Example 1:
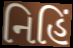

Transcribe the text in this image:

નિહિં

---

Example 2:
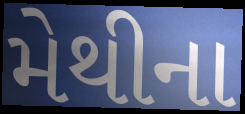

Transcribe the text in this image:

મેથીના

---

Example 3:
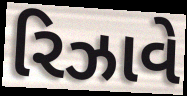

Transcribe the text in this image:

રિઝાવે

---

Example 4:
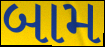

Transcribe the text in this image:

બામ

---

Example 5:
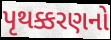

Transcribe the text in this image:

પૃથક્કરણનો